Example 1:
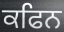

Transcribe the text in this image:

ਕਫਿਨ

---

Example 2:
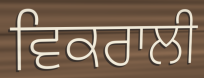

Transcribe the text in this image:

ਵਿਕਰਾਲੀ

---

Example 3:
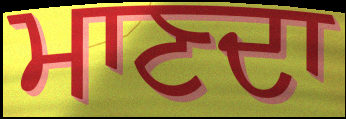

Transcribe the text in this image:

ਮਾਣਦਾ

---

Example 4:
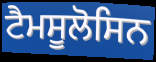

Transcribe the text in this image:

ਟੈਮਸੂਲੋਸਿਨ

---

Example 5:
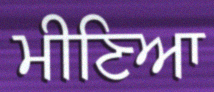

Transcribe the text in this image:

ਮੀਣਿਆ